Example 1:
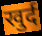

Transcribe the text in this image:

खुर्द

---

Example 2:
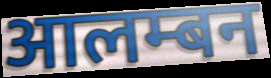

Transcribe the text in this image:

आलम्बन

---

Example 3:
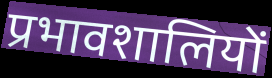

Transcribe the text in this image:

प्रभावशालियों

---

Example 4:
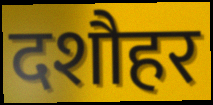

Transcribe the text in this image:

दशौहर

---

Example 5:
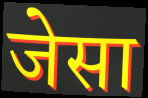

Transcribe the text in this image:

जेसा